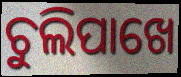
ଚୁଲିପାଖେ